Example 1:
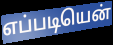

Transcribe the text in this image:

எப்படியென்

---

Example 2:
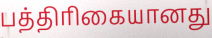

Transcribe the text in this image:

பத்திரிகையானது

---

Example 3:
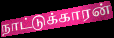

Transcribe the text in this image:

நாட்டுக்காரன்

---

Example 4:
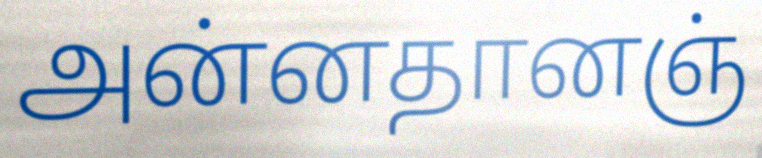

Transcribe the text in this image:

அன்னதானஞ்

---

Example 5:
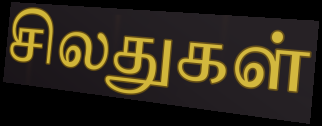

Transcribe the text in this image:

சிலதுகள்